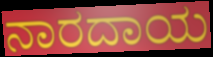
ನಾರದಾಯ